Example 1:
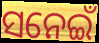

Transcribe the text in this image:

ସନେଇଁ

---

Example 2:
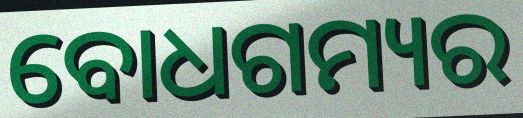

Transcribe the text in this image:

ବୋଧଗମ୍ୟର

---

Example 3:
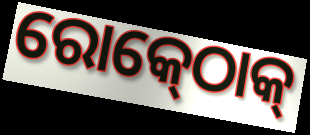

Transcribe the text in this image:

ରୋକ୍‍ଠୋକ୍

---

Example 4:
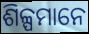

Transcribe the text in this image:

ଶିଳ୍ପମାନେ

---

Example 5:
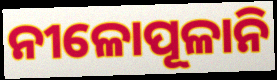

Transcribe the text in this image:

ନୀଳୋପୂଳାନି